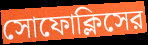
সোফোক্লিসের